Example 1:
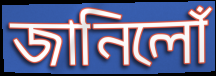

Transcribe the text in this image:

জানিলোঁ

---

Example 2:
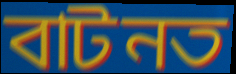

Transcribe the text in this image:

বাটনত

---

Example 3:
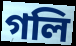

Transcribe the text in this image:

গলি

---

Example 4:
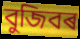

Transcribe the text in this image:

বুজিবৰ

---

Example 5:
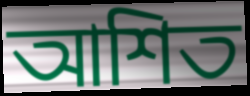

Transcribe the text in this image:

আশিত